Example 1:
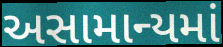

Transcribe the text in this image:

અસામાન્યમાં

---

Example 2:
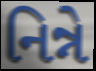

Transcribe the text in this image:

નિન્ને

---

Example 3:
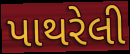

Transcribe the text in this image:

પાથરેલી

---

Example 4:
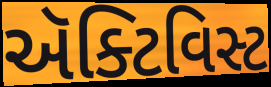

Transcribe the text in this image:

ઍક્ટિવિસ્ટ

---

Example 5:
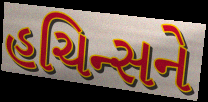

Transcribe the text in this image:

હચિન્સને